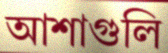
আশাগুলি